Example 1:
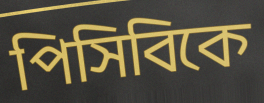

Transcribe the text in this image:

পিসিবিকে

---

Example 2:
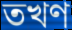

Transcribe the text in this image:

তখণ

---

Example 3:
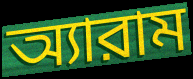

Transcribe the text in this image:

অ্যারাম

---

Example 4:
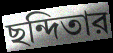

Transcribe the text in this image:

ছন্দিতার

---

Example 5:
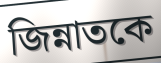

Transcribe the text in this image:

জিন্নাতকে